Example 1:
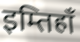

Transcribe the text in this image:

इम्तिहाँ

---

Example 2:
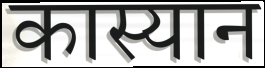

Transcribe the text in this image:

कास्यान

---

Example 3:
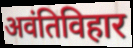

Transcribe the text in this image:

अवंतिविहार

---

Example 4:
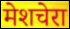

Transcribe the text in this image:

मेशचेरा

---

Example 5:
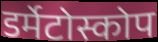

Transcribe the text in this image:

डर्मेटोस्कोप